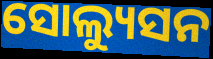
ସୋଲ୍ୟୁସନ